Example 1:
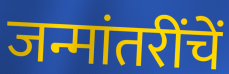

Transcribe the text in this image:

जन्मांतरींचें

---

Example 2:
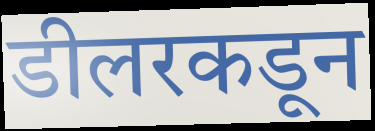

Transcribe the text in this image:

डीलरकडून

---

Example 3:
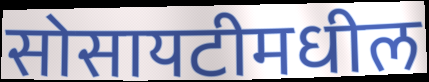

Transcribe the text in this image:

सोसायटीमधील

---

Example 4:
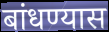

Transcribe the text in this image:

बांधण्यास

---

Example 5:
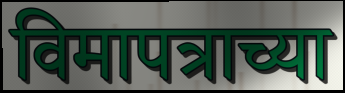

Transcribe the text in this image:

विमापत्राच्या